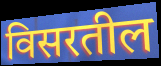
विसरतील